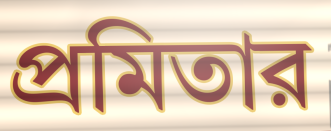
প্রমিতার